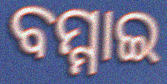
ବମ୍ମାଇ